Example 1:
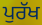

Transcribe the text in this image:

ਪੁਰੱਖ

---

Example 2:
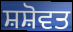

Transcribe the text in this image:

ਸ਼ਸ਼ੋਵਤ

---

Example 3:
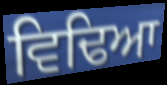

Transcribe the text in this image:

ਵਿਢਿਆ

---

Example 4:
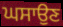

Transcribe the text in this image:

ਘਸਾਉਣ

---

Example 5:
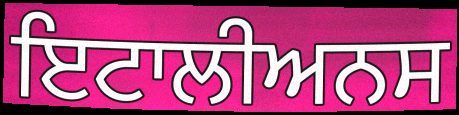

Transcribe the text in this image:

ਇਟਾਲੀਅਨਸ